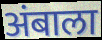
अंबाला